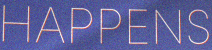
HAPPENS